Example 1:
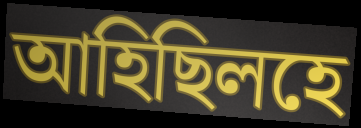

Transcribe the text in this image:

আহিছিলহে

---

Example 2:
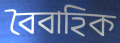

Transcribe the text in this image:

বৈবাহিক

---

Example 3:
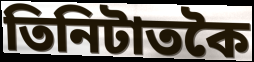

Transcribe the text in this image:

তিনিটাতকৈ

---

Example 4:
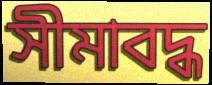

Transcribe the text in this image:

সীমাবদ্ধ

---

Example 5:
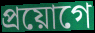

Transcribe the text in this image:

প্ৰয়োগে